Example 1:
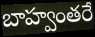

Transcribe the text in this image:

బాహ్వంతరే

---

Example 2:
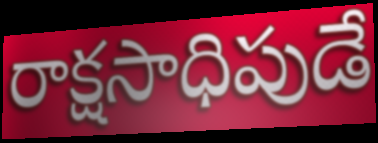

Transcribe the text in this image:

రాక్షసాధిపుడే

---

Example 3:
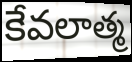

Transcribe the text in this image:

కేవలాత్మ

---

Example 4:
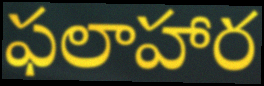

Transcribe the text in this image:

ఫలాహార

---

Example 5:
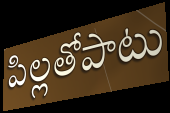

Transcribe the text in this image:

పిల్లతోపాటు